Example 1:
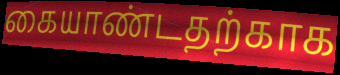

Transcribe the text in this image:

கையாண்டதற்காக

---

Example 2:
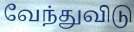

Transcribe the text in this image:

வேந்துவிடு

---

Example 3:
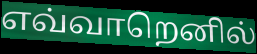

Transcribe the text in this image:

எவ்வாறெனில்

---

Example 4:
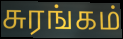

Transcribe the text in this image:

சுரங்கம்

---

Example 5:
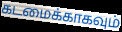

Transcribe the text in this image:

கடமைக்காகவும்